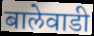
बालेवाडी